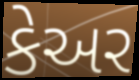
કેઅર